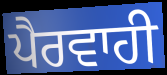
ਪੈਰਵਾਹੀ